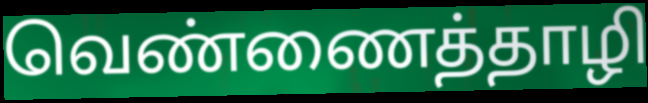
வெண்ணைத்தாழி